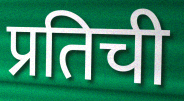
प्रतिची